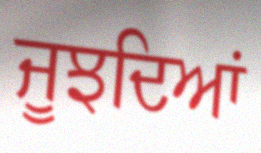
ਜੂਝਦਿਆਂ